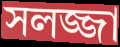
সলজ্জা